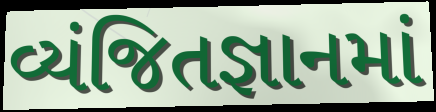
વ્યંજિતજ્ઞાનમાં